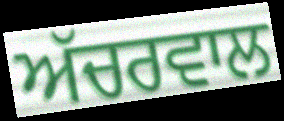
ਅੱਚਰਵਾਲ